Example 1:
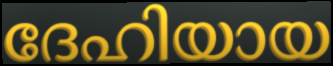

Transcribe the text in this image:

ദേഹിയായ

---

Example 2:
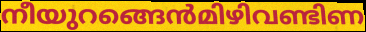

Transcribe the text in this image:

നീയുറങ്ങെൻമിഴിവണ്ടിണ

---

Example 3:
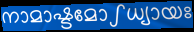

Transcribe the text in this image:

നാമാഷ്ടമോഽധ്യായഃ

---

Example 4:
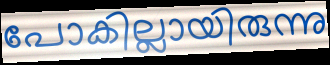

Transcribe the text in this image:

പോകില്ലായിരുന്നു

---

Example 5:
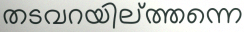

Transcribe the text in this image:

തടവറയില്ത്തന്നെ